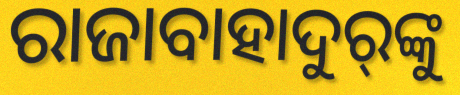
ରାଜାବାହାଦୁର୍‍ଙ୍କୁ